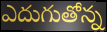
ఎదుగుతోన్న